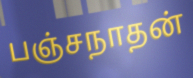
பஞ்சநாதன்